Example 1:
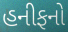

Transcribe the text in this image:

હનીફનો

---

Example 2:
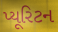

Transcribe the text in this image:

પ્યૂરિટન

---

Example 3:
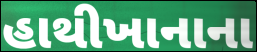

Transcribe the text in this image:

હાથીખાનાના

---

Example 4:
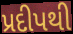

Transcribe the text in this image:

પ્રદીપથી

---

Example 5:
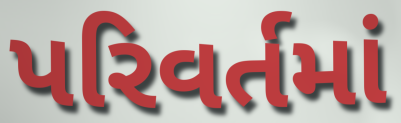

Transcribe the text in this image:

પરિવર્તમાં